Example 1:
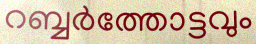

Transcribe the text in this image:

റബ്ബർത്തോട്ടവും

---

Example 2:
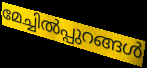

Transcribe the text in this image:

മേച്ചിൽപ്പുറങ്ങൾ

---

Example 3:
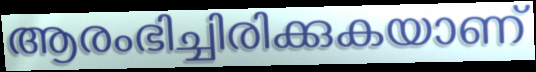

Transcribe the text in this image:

ആരംഭിച്ചിരിക്കുകയാണ്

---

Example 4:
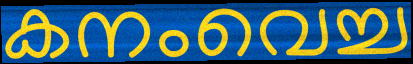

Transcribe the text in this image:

കനംവെച്ച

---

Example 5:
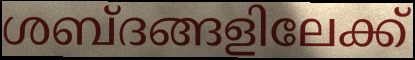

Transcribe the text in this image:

ശബ്ദങ്ങളിലേക്ക്